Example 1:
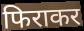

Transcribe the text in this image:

फिराकर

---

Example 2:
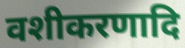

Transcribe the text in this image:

वशीकरणादि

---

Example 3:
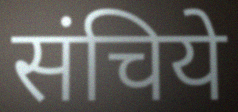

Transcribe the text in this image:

संचिये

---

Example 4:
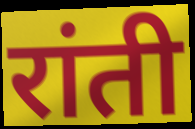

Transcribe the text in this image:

रांती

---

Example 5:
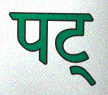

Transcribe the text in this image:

पट्